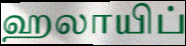
ஹலாயிப்